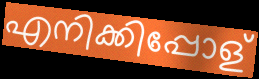
എനിക്കിപ്പോള്